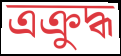
ত্রক্রুদ্ধ